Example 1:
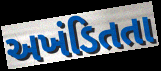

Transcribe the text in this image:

અખંડિતતા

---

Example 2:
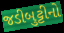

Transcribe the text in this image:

જડીબુટ્ટીનો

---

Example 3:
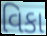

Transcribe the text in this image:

વિકા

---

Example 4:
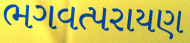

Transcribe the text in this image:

ભગવત્પરાયણ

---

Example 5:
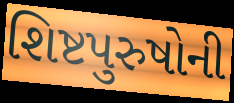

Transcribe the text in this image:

શિષ્ટપુરુષોની